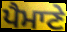
ਪੈਮਾਣੇ